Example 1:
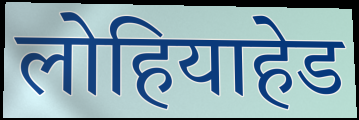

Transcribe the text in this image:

लोहियाहेड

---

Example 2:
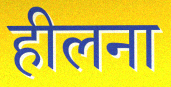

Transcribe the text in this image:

हीलना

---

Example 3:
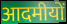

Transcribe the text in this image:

आदमीयों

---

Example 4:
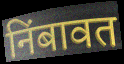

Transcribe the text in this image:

निंबावत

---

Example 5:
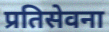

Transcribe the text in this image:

प्रतिसेवना